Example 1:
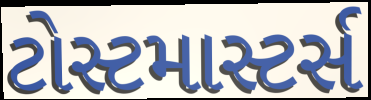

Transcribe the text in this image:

ટોસ્ટમાસ્ટર્સ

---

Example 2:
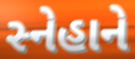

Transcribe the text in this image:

સ્નેહાને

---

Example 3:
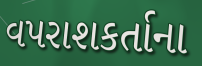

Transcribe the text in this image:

વપરાશકર્તાના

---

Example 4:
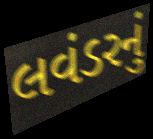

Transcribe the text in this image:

લવંડરનું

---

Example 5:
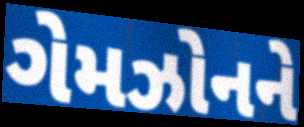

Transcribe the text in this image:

ગેમઝોનને